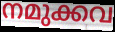
നമുക്കവ